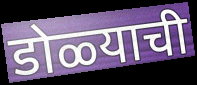
डोळ्याची